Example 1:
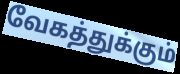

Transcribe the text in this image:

வேகத்துக்கும்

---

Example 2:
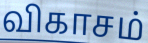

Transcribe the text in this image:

விகாசம்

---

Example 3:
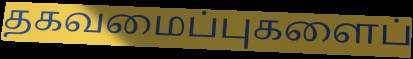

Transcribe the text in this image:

தகவமைப்புகளைப்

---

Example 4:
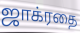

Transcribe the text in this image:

ஜாக்ரதை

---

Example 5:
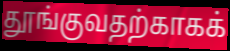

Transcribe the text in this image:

தூங்குவதற்காகக்